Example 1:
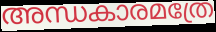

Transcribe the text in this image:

അന്ധകാരമത്രേ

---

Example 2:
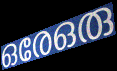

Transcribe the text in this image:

ഒരേഒരു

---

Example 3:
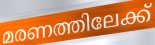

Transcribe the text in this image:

മരണത്തിലേക്ക്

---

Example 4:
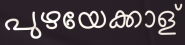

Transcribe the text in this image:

പുഴയേക്കാള്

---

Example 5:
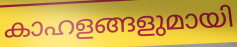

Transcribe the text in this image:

കാഹളങ്ങളുമായി